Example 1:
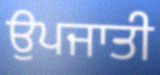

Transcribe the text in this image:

ਉਪਜਾਤੀ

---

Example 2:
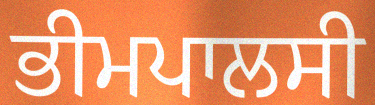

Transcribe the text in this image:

ਭੀਮਪਾਲਸੀ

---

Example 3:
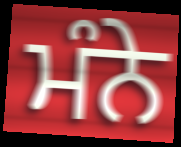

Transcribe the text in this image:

ਮੰਨੇ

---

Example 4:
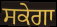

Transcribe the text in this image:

ਸਕੇਗਾ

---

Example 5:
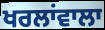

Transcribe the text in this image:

ਖਰਲਾਂਵਾਲਾ